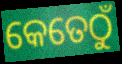
କେତେଠୁଁ